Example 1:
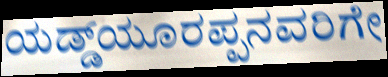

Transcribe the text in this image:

ಯಡ್ಡ್‌ಯೂರಪ್ಪನವರಿಗೇ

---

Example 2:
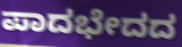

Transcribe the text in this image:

ಪಾದಭೇದದ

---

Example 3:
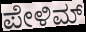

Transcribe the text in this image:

ಪೇಳಿಮ್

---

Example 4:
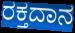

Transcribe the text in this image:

ರಕ್ತದಾನ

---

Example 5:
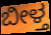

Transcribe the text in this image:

ಬೀಳ್ತ